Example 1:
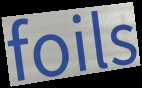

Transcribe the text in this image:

foils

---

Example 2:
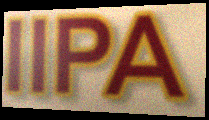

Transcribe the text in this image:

IIPA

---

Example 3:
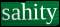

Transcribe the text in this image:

sahity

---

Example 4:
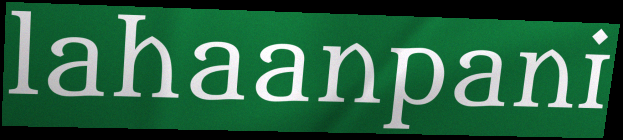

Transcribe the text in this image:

lahaanpani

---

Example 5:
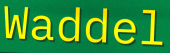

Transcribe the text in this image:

Waddel